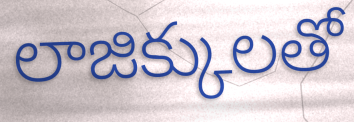
లాజిక్కులతో